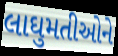
લાઘુમતીઓને